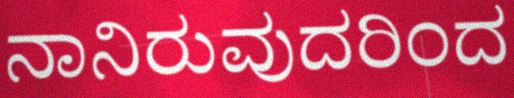
ನಾನಿರುವುದರಿಂದ